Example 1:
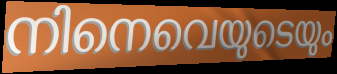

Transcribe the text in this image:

നിനെവെയുടെയും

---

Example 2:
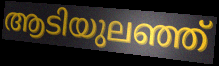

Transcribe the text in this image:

ആടിയുലഞ്ഞ്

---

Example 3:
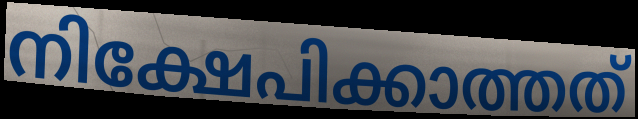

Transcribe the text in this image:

നിക്ഷേപിക്കാത്തത്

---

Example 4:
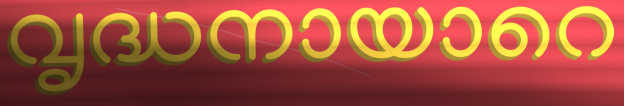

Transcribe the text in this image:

വൃദ്ധനായാറെ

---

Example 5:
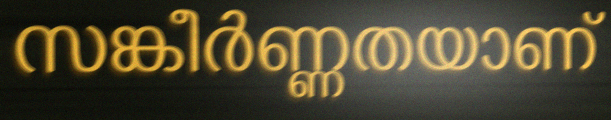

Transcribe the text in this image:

സങ്കീർണ്ണതയാണ്